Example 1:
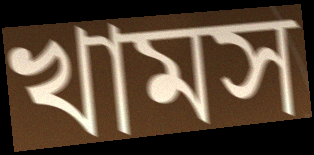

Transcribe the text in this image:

খামস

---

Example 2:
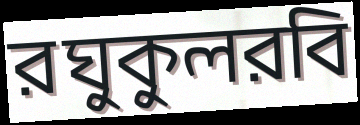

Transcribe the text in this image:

রঘুকুলরবি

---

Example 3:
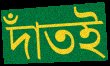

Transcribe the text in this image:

দাঁতই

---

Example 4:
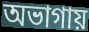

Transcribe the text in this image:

অভাগায়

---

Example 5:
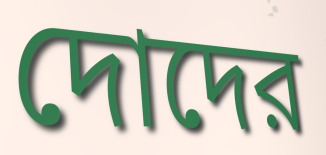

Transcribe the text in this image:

দোদের